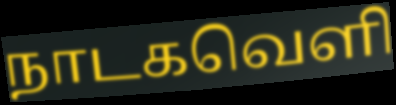
நாடகவெளி